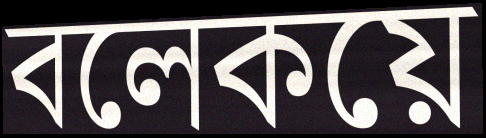
বলেকয়ে